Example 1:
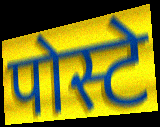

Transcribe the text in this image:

पोस्टे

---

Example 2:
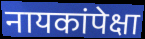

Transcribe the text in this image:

नायकांपेक्षा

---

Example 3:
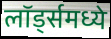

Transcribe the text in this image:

लॉर्ड्समध्ये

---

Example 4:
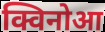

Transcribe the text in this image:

क्विनोआ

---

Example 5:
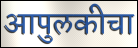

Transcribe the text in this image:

आपुलकीचा